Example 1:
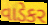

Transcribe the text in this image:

વાડેકર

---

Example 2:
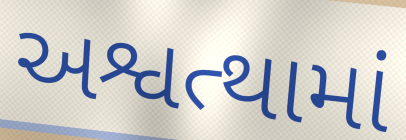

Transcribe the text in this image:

અશ્વત્થામાં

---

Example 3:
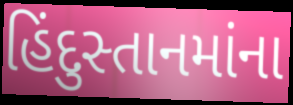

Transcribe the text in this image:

હિંદુસ્તાનમાંના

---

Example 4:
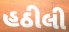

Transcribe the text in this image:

હઠીલી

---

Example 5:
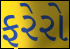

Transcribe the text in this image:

ફરેરો